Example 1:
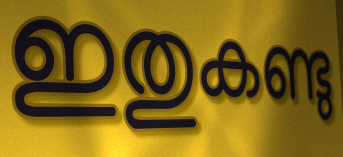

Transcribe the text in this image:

ഇതുകണ്ടു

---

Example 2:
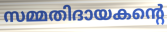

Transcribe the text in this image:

സമ്മതിദായകന്റെ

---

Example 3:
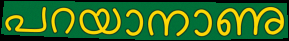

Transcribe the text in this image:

പറയാനാണു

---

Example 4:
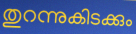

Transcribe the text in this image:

തുറന്നുകിടക്കും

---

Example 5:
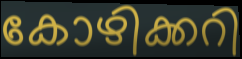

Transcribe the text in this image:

കോഴിക്കറി